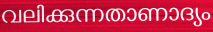
വലിക്കുന്നതാണാദ്യം